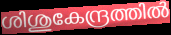
ശിശുകേന്ദ്രത്തിൽ